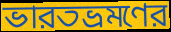
ভারতভ্রমণের